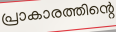
പ്രാകാരത്തിന്റെ